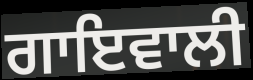
ਗਾਇਵਾਲੀ